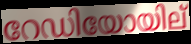
റേഡിയോയില്